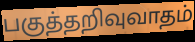
பகுத்தறிவுவாதம்